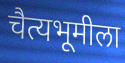
चैत्यभूमीला